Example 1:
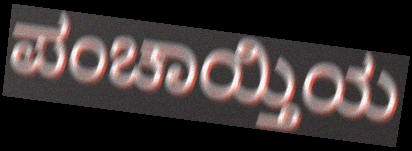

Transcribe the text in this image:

ಪಂಚಾಯ್ತಿಯ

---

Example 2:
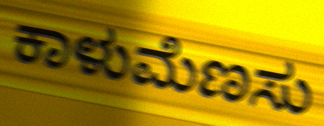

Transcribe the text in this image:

ಕಾಳುಮೆಣಸು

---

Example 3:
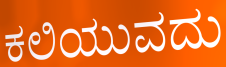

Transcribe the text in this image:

ಕಲಿಯುವದು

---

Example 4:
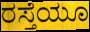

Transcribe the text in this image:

ರಸ್ತೆಯೂ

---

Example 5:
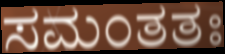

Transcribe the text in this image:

ಸಮಂತತಃ